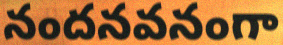
నందనవనంగా